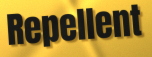
Repellent